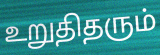
உறுதிதரும்